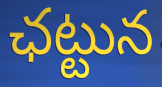
ఛట్టున